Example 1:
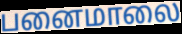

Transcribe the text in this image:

பனைமாலை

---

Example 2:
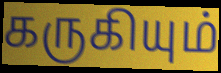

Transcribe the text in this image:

கருகியும்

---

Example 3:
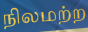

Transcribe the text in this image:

நிலமற்ற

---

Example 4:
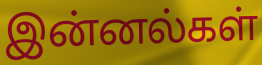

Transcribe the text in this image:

இன்னல்கள்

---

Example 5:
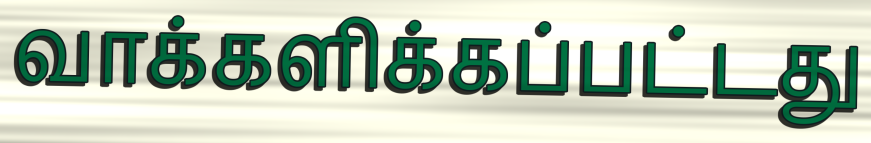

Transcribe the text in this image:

வாக்களிக்கப்பட்டது